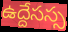
ఉద్దేసస్స